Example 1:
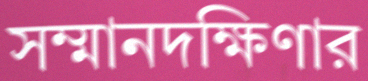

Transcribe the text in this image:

সম্মানদক্ষিণার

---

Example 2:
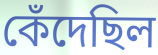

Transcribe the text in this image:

কেঁদেছিল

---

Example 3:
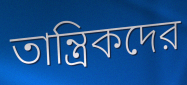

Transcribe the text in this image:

তান্ত্রিকদের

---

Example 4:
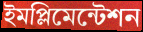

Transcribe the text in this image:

ইমপ্লিমেন্টেশন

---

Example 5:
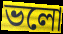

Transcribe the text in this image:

ভলো